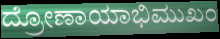
ದ್ರೋಣಾಯಾಭಿಮುಖಂ